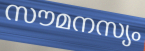
സൗമനസ്യം